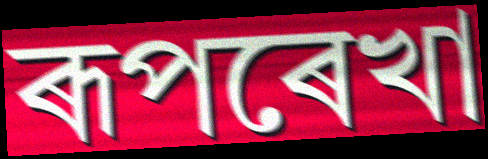
ৰূপৰেখা